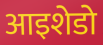
आइशेडो